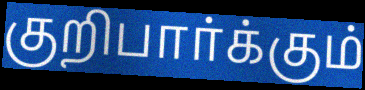
குறிபார்க்கும்